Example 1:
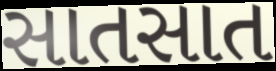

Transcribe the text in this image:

સાતસાત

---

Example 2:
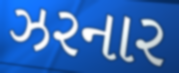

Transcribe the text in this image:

ઝરનાર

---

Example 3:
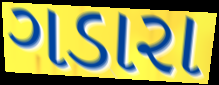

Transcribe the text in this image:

ગડારા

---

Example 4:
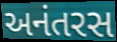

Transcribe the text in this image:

અનંતરસ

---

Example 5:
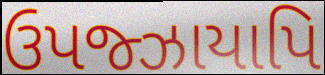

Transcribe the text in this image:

ઉપજ્ઝાયાપિ